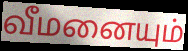
வீமனையும்